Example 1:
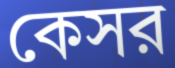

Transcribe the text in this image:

কেসর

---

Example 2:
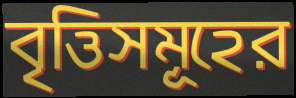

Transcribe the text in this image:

বৃত্তিসমূহের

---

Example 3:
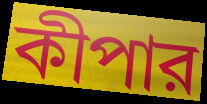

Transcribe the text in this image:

কীপার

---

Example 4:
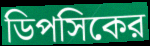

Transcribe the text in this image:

ডিপসিকের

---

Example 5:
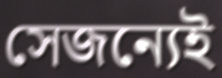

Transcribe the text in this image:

সেজন্যেই